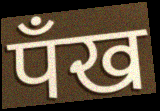
पँख